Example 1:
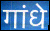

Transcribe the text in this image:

गांधे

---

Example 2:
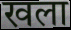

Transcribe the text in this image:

खला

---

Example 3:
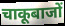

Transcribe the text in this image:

चाकूबाजों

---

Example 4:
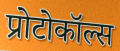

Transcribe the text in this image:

प्रोटोकॉल्स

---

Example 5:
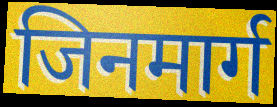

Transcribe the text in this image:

जिनमार्ग